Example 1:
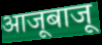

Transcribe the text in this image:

आजूबाजू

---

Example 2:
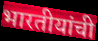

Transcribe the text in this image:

भारतीयांची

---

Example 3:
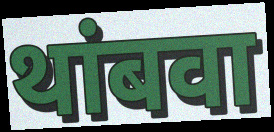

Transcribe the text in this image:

थांबवा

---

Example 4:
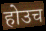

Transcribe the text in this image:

होउच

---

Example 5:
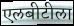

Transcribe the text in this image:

एलबीटीला